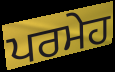
ਪਰਮੇਹ